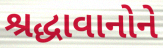
શ્રદ્ધાવાનોને